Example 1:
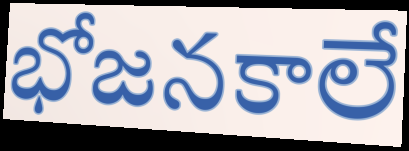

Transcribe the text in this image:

భోజనకాలే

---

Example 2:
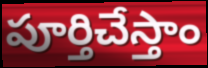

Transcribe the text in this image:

పూర్తిచేస్తాం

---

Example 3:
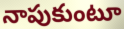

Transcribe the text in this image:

నాపుకుంటూ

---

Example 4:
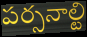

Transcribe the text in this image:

పర్సనాల్టి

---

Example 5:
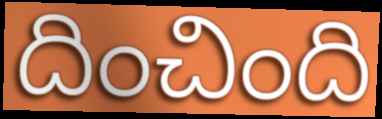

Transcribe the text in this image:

దించింది